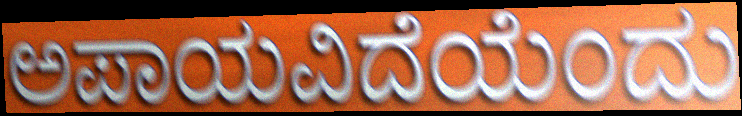
ಅಪಾಯವಿದೆಯೆಂದು